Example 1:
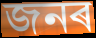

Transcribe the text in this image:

জনৰ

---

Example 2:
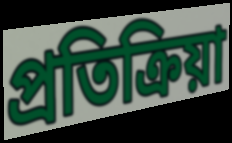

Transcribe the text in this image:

প্ৰতিক্ৰিয়া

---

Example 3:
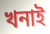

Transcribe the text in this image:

খনাই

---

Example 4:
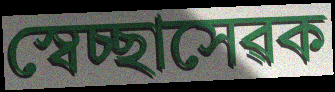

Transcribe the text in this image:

স্বেচ্ছাসেৱক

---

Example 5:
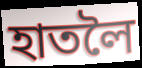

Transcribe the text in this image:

হাতলৈ